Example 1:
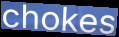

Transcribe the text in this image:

chokes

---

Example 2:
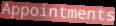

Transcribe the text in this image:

Appointments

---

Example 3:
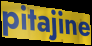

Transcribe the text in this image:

pitajine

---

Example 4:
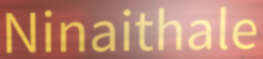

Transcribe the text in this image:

Ninaithale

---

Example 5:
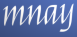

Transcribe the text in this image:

mnay